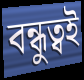
বন্ধুত্বই